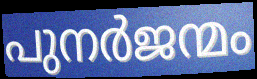
പുനർജന്മം